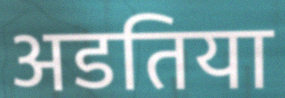
अडतिया